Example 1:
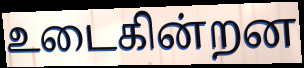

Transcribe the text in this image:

உடைகின்றன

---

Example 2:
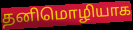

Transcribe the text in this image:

தனிமொழியாக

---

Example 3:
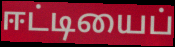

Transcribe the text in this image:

ஈட்டியைப்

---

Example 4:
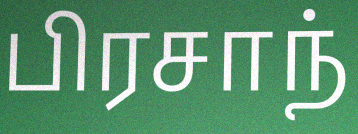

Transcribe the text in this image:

பிரசாந்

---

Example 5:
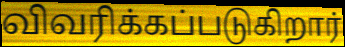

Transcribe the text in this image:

விவரிக்கப்படுகிறார்